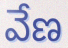
వేణ